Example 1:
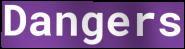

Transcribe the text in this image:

Dangers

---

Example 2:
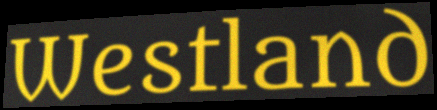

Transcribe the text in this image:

Westland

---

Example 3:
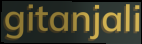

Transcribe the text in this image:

gitanjali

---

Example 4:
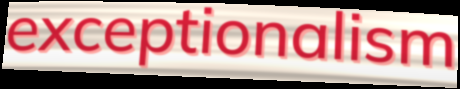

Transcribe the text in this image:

exceptionalism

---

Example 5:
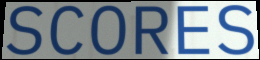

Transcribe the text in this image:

SCORES